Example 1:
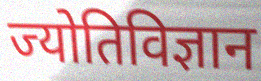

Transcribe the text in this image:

ज्योतिविज्ञान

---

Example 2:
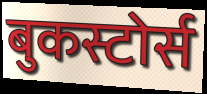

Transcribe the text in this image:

बुकस्टोर्स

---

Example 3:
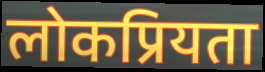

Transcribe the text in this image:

लोकप्रियता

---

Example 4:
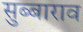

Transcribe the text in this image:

सुब्बाराव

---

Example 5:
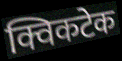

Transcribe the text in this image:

क्विकटेक